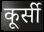
कूर्सी